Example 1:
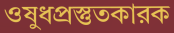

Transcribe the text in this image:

ওষুধপ্রস্তুতকারক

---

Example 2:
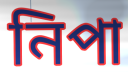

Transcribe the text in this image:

নিপা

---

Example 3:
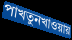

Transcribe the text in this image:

পাখতুনখাওয়ায়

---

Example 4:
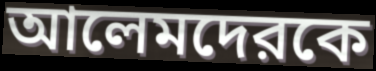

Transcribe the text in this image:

আলেমদেরকে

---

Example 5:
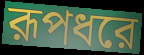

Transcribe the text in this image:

রূপধরে